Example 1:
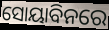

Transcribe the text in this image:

ସୋୟାବିନରେ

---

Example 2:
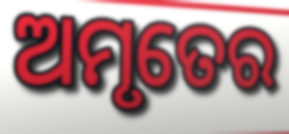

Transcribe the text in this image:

ଅମୃତେର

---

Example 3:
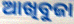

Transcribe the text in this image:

ଆଖିବୁଜା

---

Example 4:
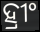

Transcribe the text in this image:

ହ୍ରୀଂ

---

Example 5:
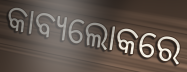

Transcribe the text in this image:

କାବ୍ୟଲୋକରେ